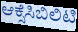
ಆಕ್ಸೆಸಿಬಿಲಿಟಿ